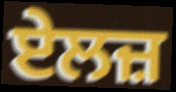
ਏਲਜ਼